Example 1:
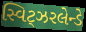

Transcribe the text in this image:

સ્વિટ્ઝરલેન્ડે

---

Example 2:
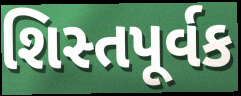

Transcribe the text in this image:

શિસ્તપૂર્વક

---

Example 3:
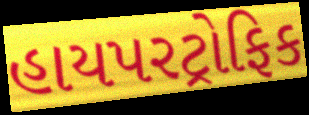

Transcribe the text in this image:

હાયપરટ્રોફિક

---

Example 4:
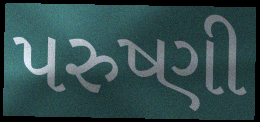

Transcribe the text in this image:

પરુષ્ણી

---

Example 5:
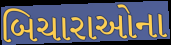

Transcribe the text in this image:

બિચારાઓના